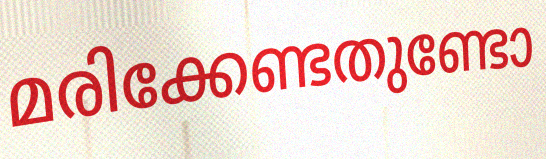
മരിക്കേണ്ടതുണ്ടോ